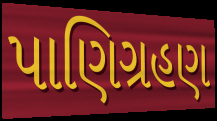
પાણિગ્રહણ